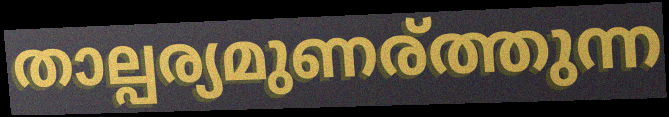
താല്പര്യമുണര്ത്തുന്ന